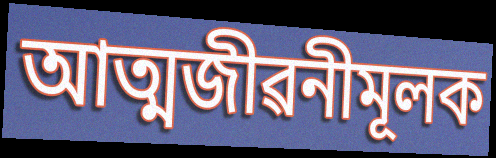
আত্মজীৱনীমূলক